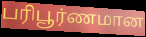
பரிபூர்ணமான